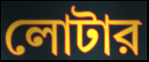
লোটার